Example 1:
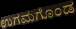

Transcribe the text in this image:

ಉಗಮಗೊಂಡ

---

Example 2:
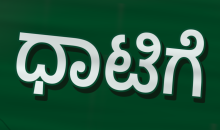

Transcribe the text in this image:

ಧಾಟಿಗೆ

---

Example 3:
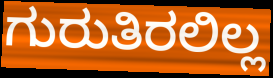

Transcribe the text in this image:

ಗುರುತಿರಲಿಲ್ಲ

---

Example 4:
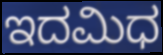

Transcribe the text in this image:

ಇದಮಿಧ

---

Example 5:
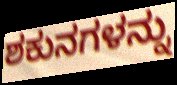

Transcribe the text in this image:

ಶಕುನಗಳನ್ನು